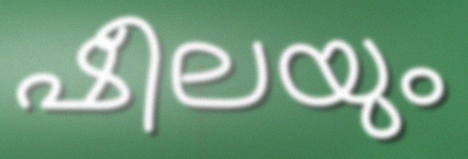
ഷീലയും